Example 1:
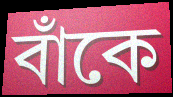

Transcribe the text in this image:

বাঁকে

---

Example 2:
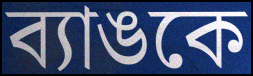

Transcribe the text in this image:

ব্যাঙকে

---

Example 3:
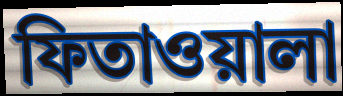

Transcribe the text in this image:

ফিতাওয়ালা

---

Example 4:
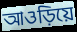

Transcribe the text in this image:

আওড়িয়ে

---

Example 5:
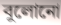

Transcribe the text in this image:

বুলোনো